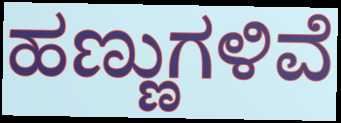
ಹಣ್ಣುಗಳಿವೆ